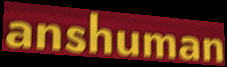
anshuman